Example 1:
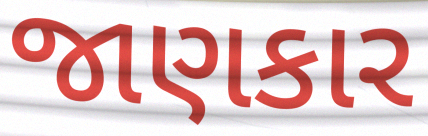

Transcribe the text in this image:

જાણકાર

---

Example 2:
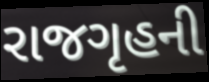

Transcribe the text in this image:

રાજગૃહની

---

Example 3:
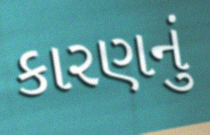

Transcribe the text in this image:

કારણનું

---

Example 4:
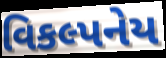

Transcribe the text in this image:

વિકલ્પનેય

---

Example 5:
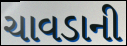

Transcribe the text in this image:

ચાવડાની